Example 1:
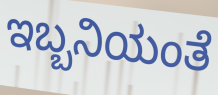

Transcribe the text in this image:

ಇಬ್ಬನಿಯಂತೆ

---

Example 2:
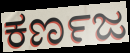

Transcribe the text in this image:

ಕರ್ಣಜ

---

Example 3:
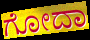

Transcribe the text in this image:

ಗೋದಾ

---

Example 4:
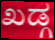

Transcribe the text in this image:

ಖಡ್ಗ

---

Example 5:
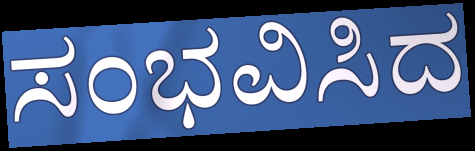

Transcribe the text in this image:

ಸಂಭವಿಸಿದ